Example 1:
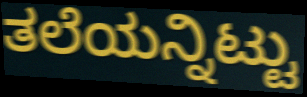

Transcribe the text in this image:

ತಲೆಯನ್ನಿಟ್ಟು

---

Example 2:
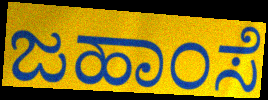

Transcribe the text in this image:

ಜಹಾಂಸೆ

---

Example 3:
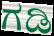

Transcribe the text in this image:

ಗಡಿ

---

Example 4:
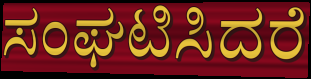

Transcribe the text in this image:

ಸಂಘಟಿಸಿದರೆ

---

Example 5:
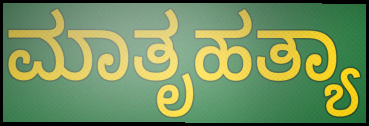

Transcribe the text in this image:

ಮಾತೃಹತ್ಯಾ